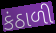
કંઠાળી